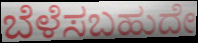
ಬೆಳೆಸಬಹುದೇ